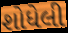
શોધેલી